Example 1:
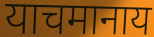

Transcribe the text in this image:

याचमानाय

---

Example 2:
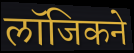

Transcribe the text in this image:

लॉजिकने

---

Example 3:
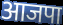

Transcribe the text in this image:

आजपा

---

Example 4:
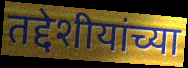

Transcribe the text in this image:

तद्देशीयांच्या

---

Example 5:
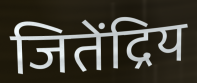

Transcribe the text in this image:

जितेंद्रिय